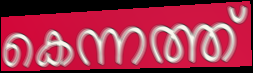
കെന്നത്ത്